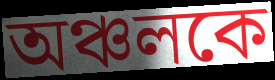
অঞ্চলকে